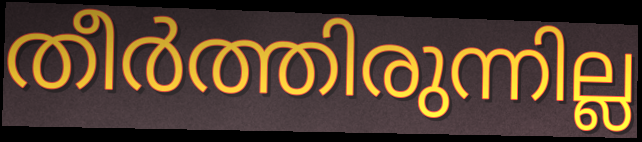
തീർത്തിരുന്നില്ല